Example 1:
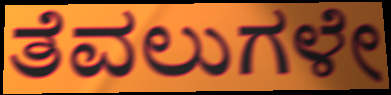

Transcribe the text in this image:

ತೆವಲುಗಳೇ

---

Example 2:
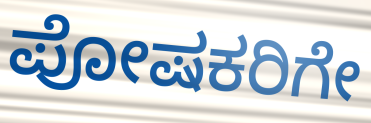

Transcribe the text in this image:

ಪೋಷಕರಿಗೇ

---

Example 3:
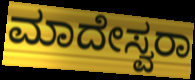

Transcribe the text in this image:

ಮಾದೇಸ್ವರಾ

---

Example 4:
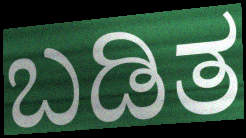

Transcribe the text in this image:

ಬಡಿತ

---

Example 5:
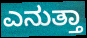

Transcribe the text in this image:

ಎನುತ್ತಾ